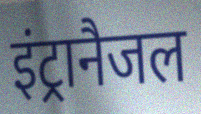
इंट्रानैजल